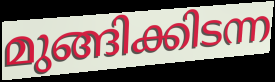
മുങ്ങിക്കിടന്ന